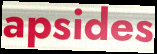
apsides